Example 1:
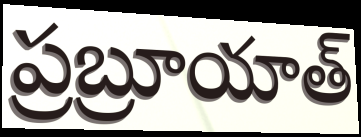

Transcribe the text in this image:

ప్రబ్రూయాత్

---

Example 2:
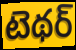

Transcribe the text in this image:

టెథర్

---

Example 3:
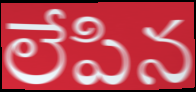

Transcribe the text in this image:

లేపిన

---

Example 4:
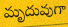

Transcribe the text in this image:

మృదువుగా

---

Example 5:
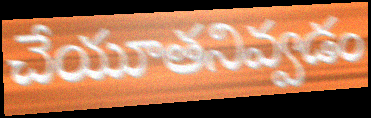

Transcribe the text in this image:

చేయూతనివ్వడం